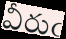
వీరుఁ